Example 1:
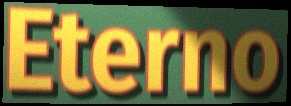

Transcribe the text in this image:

Eterno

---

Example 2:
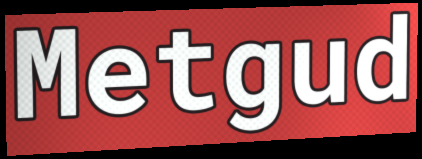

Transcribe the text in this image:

Metgud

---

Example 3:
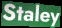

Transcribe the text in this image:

Staley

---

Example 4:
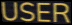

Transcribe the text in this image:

USER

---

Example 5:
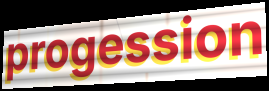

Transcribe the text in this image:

progession